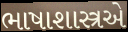
ભાષાશાસ્ત્રએ